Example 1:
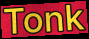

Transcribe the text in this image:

Tonk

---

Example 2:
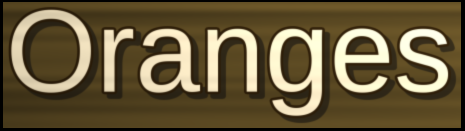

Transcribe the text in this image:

Oranges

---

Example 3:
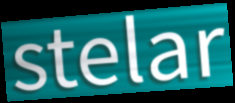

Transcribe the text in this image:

stelar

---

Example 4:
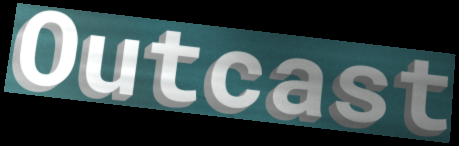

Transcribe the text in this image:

Outcast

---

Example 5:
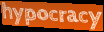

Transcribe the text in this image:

hypocracy